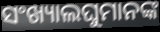
ସଂଖ୍ୟାଲଘୁମାନଙ୍କ